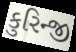
કુરિન્જી